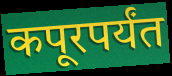
कपूरपर्यंत